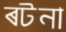
ৰটনা